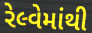
રેલ્વેમાંથી